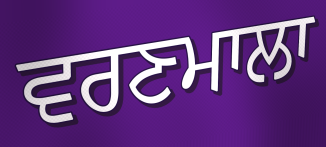
ਵਰਣਮਾਲਾ